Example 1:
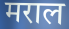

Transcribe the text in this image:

मराल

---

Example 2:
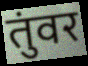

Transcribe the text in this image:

तुंवर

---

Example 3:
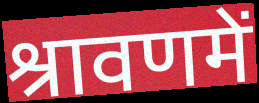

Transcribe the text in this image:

श्रावणमें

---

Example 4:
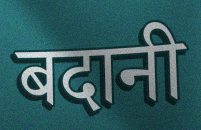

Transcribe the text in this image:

बदानी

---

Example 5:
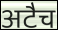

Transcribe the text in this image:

अटैच